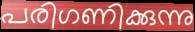
പരിഗണിക്കുന്നു